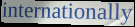
internationally